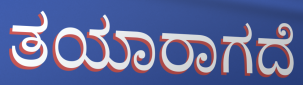
ತಯಾರಾಗದೆ